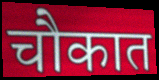
चौकात